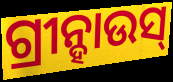
ଗ୍ରୀନ୍ହାଉସ୍